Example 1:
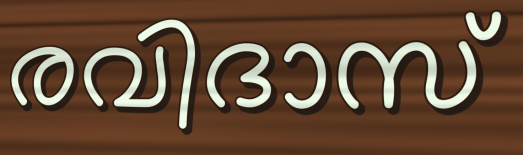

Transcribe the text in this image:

രവിദാസ്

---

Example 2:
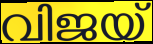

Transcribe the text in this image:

വിജയ്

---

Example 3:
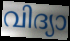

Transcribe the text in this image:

വിദ്യാ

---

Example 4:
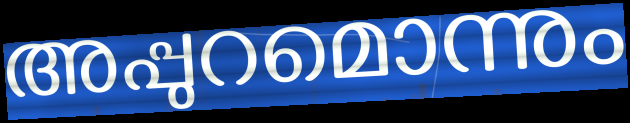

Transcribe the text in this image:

അപ്പുറമൊന്നും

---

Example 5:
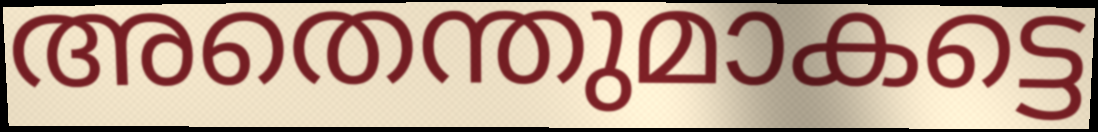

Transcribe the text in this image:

അതെന്തുമാകട്ടെ